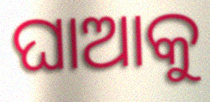
ଘାଆକୁ